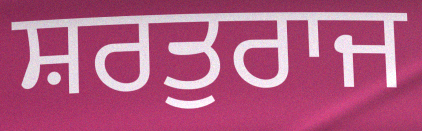
ਸ਼ਰਤੁਰਾਜ